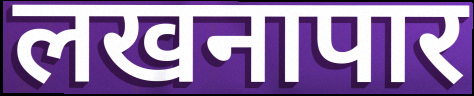
लखनापार